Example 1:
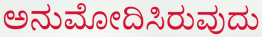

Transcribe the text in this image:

ಅನುಮೋದಿಸಿರುವುದು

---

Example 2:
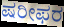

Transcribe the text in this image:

ಷರೀಫರ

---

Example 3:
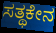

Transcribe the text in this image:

ಸತ್ಥಕೇನ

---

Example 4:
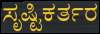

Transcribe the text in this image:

ಸೃಷ್ಟಿಕರ್ತರ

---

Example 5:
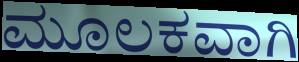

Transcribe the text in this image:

ಮೂಲಕವಾಗಿ